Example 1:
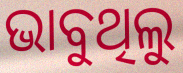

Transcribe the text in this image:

ଭାବୁଥିଲୁ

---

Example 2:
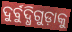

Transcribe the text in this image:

ଦୁର୍ବୁଦ୍ଧିଗୁଡ଼ାକୁ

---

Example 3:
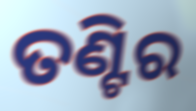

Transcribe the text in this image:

ତଣ୍ଟିର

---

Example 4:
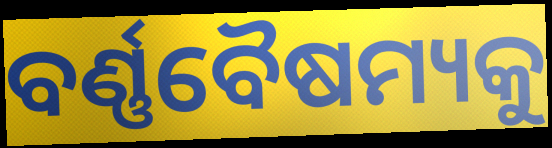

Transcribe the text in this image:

ବର୍ଣ୍ଣବୈଷମ୍ୟକୁ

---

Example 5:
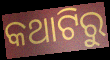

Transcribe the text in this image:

କଥାଟିରୁ